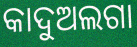
କାଦୁଅଲଗା